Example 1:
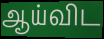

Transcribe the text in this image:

ஆய்விட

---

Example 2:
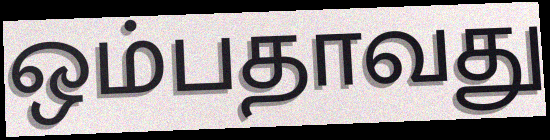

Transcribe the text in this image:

ஒம்பதாவது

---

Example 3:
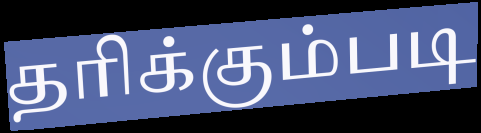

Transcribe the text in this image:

தரிக்கும்படி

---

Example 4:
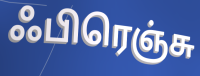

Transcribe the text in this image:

ஃபிரெஞ்சு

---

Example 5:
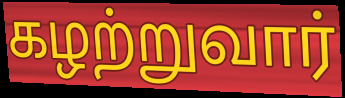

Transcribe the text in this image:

கழற்றுவார்